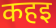
कहइ